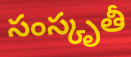
సంస్కృతీ